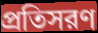
প্রতিসরণ